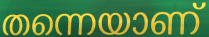
തന്നെയാണ്